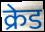
क्रेड